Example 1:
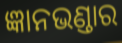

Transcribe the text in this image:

ଜ୍ଞାନଭଣ୍ଡାର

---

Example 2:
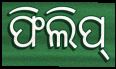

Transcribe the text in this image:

ଫିଲିପ୍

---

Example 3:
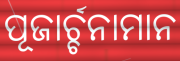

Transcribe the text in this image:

ପୂଜାର୍ଚ୍ଚନାମାନ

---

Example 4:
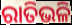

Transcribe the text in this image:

ରାତିଭଳି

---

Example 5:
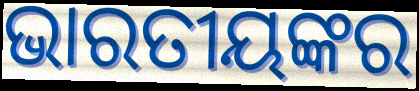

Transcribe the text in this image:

ଭାରତୀୟଙ୍କର